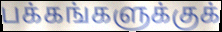
பக்கங்களுக்குக்